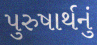
પુરુષાર્થનું